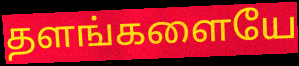
தளங்களையே